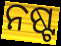
ନଷ୍ଟ